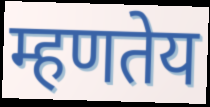
म्हणतेय